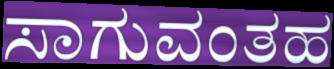
ಸಾಗುವಂತಹ